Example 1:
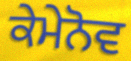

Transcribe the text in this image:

ਕੇਮੇਨੋਵ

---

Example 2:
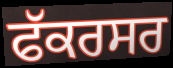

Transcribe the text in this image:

ਫੱਕਰਸਰ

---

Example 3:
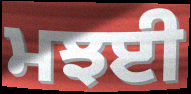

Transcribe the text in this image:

ਮਝਈ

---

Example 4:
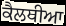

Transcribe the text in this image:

ਕੈਲਥੀਆ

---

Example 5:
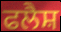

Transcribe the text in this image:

ਫਲੈਸ਼